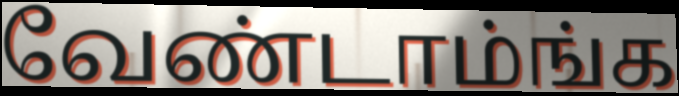
வேண்டாம்ங்க